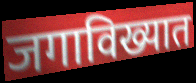
जगाविख्यात